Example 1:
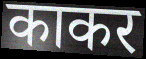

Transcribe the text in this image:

काकर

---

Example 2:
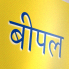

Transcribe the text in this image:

बीपल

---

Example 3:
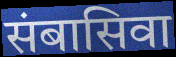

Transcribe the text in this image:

संबासिवा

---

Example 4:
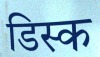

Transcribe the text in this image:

डिस्क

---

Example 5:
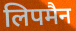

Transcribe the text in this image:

लिपमैन